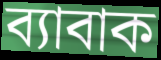
ব্যাবাক